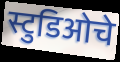
स्टुडिओचे